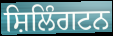
ਸ਼ਿਲਿੰਗਟਨ